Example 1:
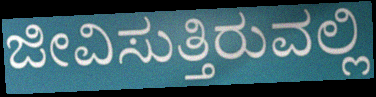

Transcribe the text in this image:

ಜೀವಿಸುತ್ತಿರುವಲ್ಲಿ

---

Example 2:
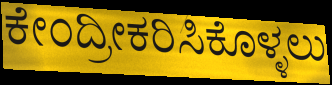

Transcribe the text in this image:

ಕೇಂದ್ರೀಕರಿಸಿಕೊಳ್ಳಲು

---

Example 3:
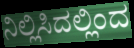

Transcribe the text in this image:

ನಿಲ್ಲಿಸಿದಲ್ಲಿಂದ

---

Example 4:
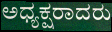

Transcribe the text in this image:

ಅಧ್ಯಕ್ಷರಾದರು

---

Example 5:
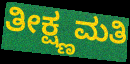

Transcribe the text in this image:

ತೀಕ್ಷ್ಣಮತಿ